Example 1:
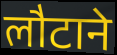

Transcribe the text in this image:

लौटाने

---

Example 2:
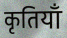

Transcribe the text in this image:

कृतियाँ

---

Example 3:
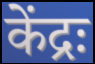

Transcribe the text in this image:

केंद्रः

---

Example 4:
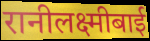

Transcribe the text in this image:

रानीलक्ष्मीबाई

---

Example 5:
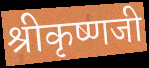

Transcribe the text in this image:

श्रीकृष्णजी